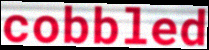
cobbled